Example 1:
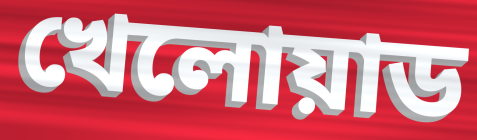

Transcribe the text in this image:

খেলোয়াড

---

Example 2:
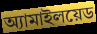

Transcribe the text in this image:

অ্যামাইলয়েড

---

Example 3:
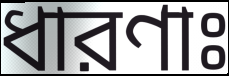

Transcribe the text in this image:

ধারণাঃ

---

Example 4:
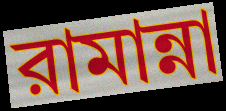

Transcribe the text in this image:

রামান্না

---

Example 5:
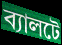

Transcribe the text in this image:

ব্যালটে